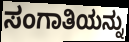
ಸಂಗಾತಿಯನ್ನು